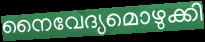
നൈവേദ്യമൊഴുക്കി